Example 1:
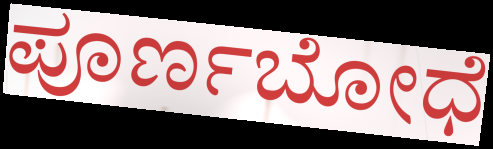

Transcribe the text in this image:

ಪೂರ್ಣಬೋಧೆ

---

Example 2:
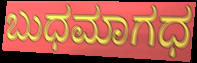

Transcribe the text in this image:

ಬುಧಮಾಗಧ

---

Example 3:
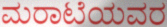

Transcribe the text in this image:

ಮರಾಟೆಯವರ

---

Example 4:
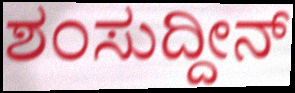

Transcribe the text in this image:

ಶಂಸುದ್ದೀನ್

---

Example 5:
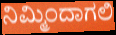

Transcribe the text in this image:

ನಿಮ್ಮಿಂದಾಗಲಿ